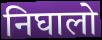
निघालो